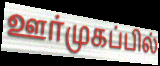
ஊர்முகப்பில்